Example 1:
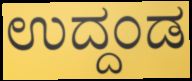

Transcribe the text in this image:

ಉದ್ದಂಡ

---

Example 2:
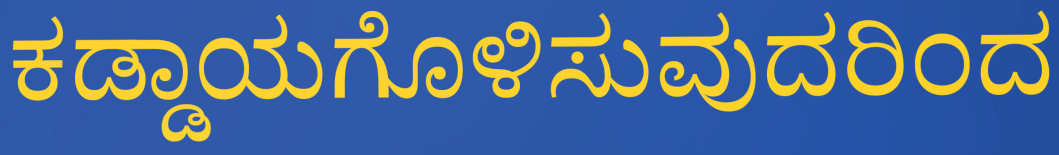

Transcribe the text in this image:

ಕಡ್ಡಾಯಗೊಳಿಸುವುದರಿಂದ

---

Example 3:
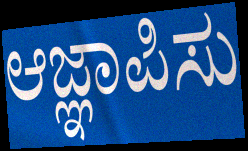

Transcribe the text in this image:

ಆಜ್ಞಾಪಿಸು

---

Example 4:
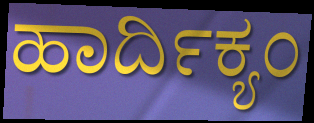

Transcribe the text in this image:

ಹಾರ್ದಿಕ್ಯಂ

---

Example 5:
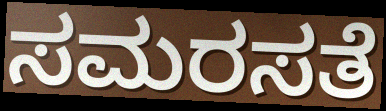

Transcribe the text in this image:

ಸಮರಸತೆ